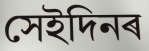
সেইদিনৰ